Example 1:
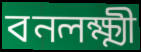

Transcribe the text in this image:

বনলক্ষ্মী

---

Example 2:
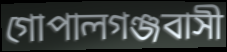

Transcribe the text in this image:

গোপালগঞ্জবাসী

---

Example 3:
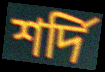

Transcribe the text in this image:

শর্দি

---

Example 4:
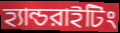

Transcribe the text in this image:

হ্যান্ডরাইটিং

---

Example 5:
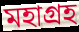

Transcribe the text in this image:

মহাগ্রহ